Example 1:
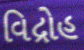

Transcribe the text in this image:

વિદ્રોહ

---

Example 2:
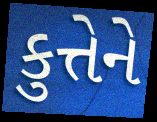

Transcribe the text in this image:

કુત્તેને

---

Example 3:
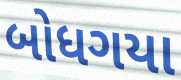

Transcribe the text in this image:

બોધગયા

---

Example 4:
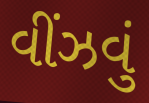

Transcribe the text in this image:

વીંઝવું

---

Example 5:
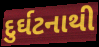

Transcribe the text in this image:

દુર્ઘટનાથી